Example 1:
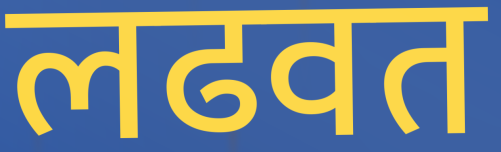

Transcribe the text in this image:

लढवत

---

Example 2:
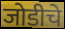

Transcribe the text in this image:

जोडीचे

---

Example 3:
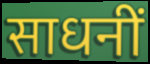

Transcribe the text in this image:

साधनीं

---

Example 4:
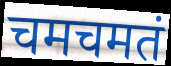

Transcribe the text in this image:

चमचमतं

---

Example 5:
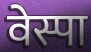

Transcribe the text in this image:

वेस्पा